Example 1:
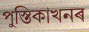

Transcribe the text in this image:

পুস্তিকাখনৰ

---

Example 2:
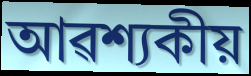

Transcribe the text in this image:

আৱশ্য়কীয়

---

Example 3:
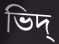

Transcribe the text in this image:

ভিদ্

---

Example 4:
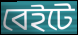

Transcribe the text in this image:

বেইটে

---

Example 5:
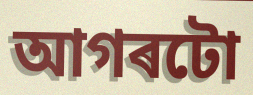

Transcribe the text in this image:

আগৰটো